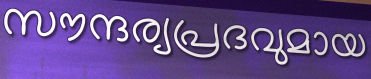
സൗന്ദര്യപ്രദവുമായ